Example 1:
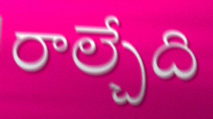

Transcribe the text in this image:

రాల్చేది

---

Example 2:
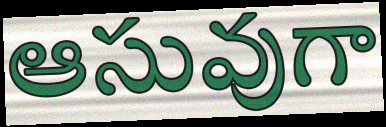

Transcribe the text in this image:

ఆసువుగా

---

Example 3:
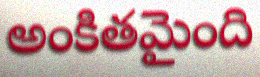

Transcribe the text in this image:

అంకితమైంది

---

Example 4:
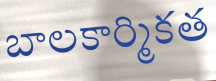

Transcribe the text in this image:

బాలకార్మికత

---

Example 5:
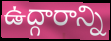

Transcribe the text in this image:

ఉద్గారాన్ని